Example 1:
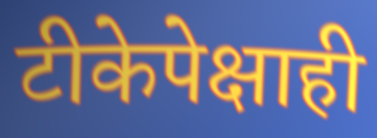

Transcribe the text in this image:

टीकेपेक्षाही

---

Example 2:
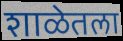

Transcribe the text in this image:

शाळेतला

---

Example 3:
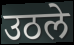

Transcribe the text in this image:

उठले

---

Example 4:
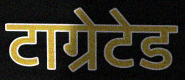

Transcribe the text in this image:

टाग्रेटेड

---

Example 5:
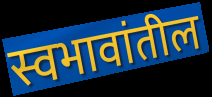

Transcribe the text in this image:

स्वभावांतील